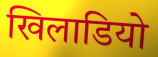
खिलाडियो